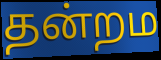
தன்றம